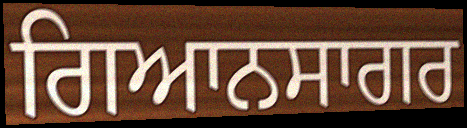
ਗਿਆਨਸਾਗਰ